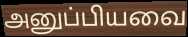
அனுப்பியவை